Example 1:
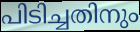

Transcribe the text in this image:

പിടിച്ചതിനും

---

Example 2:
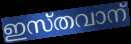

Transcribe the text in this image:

ഇസ്തവാന്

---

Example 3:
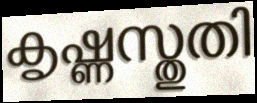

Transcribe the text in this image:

കൃഷ്ണസ്തുതി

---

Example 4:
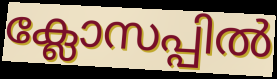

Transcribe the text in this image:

ക്ലോസപ്പിൽ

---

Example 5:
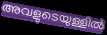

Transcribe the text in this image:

അവളുടെയുള്ളിൽ